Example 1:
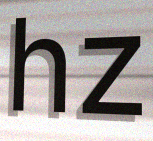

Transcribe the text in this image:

hz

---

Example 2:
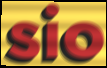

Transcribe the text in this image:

sio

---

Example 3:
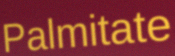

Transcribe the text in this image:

Palmitate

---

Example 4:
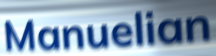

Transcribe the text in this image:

Manuelian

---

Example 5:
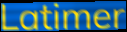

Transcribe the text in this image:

Latimer